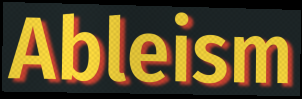
Ableism